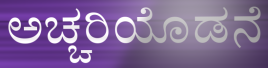
ಅಚ್ಚರಿಯೊಡನೆ